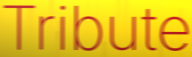
Tribute